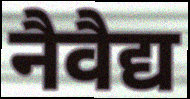
नैवैद्य